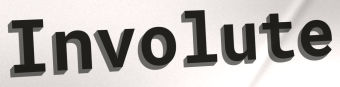
Involute